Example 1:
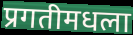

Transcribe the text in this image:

प्रगतीमधला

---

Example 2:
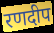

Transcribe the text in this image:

रणदीप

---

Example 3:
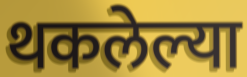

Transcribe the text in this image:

थकलेल्या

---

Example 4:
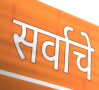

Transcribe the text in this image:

सर्वाचे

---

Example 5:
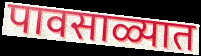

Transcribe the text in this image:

पावसाळ्यात